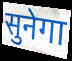
सुनेगा